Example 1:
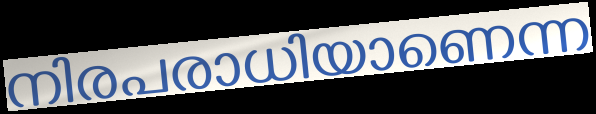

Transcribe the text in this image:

നിരപരാധിയാണെന്ന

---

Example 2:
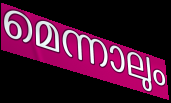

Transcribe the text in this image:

മെന്നാലും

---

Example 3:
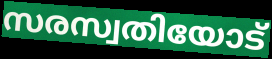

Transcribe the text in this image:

സരസ്വതിയോട്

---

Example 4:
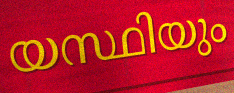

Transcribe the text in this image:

യസ്ഥിയും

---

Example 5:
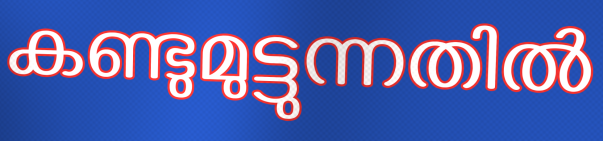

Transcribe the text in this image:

കണ്ടുമുട്ടുന്നതിൽ